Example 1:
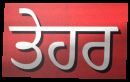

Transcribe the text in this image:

ਤੇਹਰ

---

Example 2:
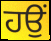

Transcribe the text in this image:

ਹਉਂ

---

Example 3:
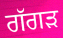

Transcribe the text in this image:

ਗੱਗੜ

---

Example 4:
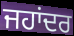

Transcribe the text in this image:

ਜਹਾਂਦਰ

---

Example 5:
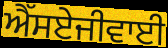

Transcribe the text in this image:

ਐੱਸਏਜੀਵਾਈ